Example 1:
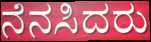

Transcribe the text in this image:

ನೆನಸಿದರು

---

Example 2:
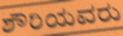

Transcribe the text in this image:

ಶೌರಿಯವರು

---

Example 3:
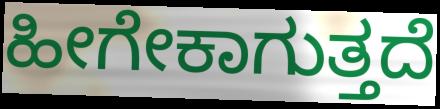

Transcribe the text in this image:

ಹೀಗೇಕಾಗುತ್ತದೆ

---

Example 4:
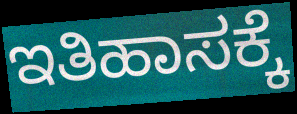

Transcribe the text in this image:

ಇತಿಹಾಸಕ್ಕೆ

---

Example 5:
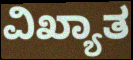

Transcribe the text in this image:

ವಿಖ್ಯಾತ